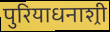
पुरियाधनाश्री